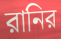
রানির